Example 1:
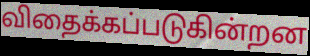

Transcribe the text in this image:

விதைக்கப்படுகின்றன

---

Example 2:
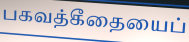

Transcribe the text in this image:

பகவத்கீதையைப்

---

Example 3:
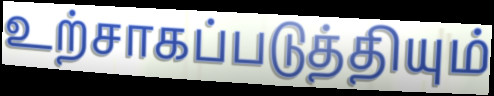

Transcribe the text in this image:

உற்சாகப்படுத்தியும்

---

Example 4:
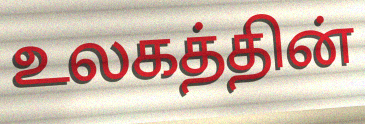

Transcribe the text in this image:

உலகத்தின்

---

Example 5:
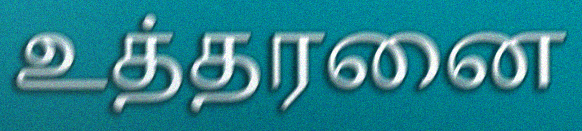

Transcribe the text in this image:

உத்தரனை